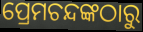
ପ୍ରେମଚନ୍ଦଙ୍କଠାରୁ